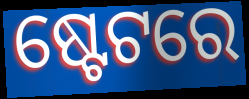
ଷ୍ଟେଟରେ